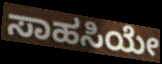
ಸಾಹಸಿಯೇ